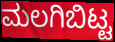
ಮಲಗಿಬಿಟ್ಟ